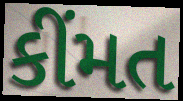
કીંમત